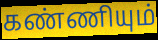
கண்ணியும்